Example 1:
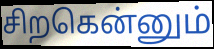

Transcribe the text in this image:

சிறகென்னும்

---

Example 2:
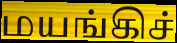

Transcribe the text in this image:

மயங்கிச்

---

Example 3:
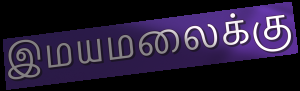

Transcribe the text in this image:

இமயமலைக்கு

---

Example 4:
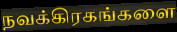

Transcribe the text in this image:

நவக்கிரகங்களை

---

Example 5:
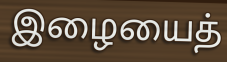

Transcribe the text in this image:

இழையைத்